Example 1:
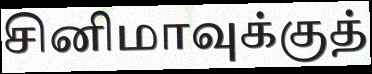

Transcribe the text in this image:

சினிமாவுக்குத்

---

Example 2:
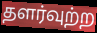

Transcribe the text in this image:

தளர்வுற்ற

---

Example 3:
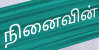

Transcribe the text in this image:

நினைவின்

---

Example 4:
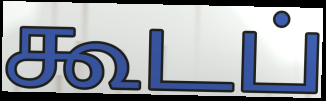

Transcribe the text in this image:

கூடப்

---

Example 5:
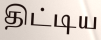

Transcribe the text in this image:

திட்டிய